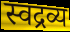
स्वद्रव्य